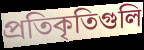
প্রতিকৃতিগুলি